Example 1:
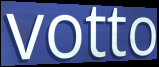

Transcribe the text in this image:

votto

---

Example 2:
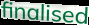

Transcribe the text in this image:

finalised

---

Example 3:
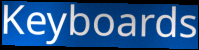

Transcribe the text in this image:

Keyboards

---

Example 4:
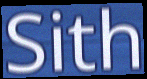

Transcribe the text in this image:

Sith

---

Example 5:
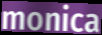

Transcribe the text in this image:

monica